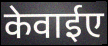
केवाईए